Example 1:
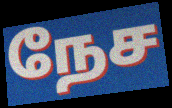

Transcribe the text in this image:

நேச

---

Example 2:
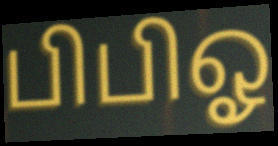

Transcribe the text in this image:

பிபிஓ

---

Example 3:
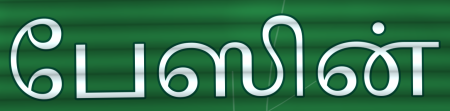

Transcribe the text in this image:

பேஸின்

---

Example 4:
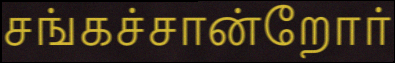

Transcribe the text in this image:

சங்கச்சான்றோர்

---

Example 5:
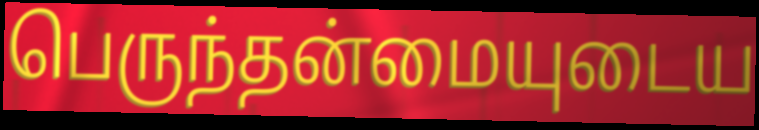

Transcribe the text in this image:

பெருந்தன்மையுடைய